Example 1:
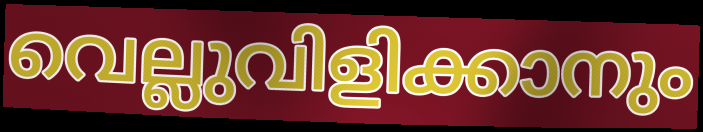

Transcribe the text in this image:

വെല്ലുവിളിക്കാനും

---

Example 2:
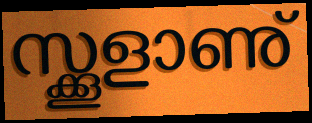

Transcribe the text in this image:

സ്ക്കൂളാണു്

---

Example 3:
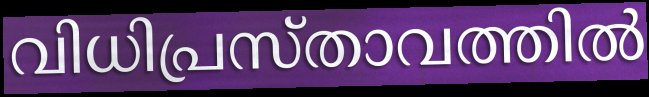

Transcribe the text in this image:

വിധിപ്രസ്താവത്തിൽ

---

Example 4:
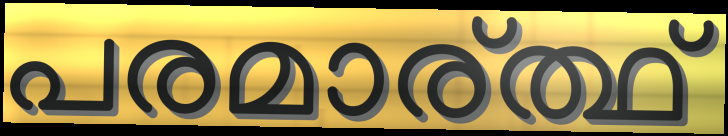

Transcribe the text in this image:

പരമാര്ത്ഥ്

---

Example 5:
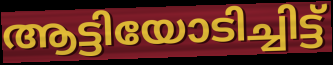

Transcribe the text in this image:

ആട്ടിയോടിച്ചിട്ട്